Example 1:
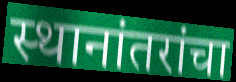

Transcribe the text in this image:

स्थानांतरांचा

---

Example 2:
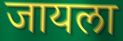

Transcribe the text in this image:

जायला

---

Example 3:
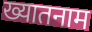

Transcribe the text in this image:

ख्यातनाम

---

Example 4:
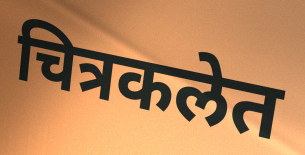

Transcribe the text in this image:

चित्रकलेत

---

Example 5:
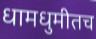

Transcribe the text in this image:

धामधुमीतच